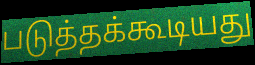
படுத்தக்கூடியது